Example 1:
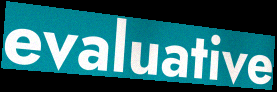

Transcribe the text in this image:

evaluative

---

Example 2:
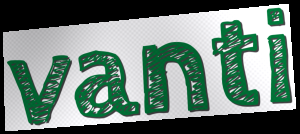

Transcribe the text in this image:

vanti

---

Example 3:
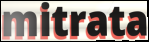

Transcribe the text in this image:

mitrata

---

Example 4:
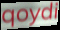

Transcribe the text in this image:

qoydi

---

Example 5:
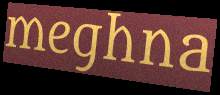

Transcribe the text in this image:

meghna